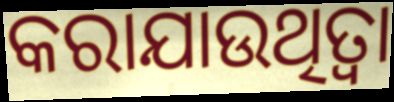
କରାଯାଉଥିତ୍ବା